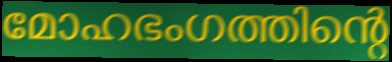
മോഹഭംഗത്തിന്റെ